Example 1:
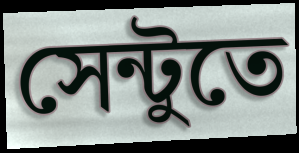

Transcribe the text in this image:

সেন্টুতে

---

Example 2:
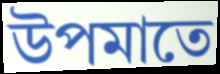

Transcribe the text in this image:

উপমাতে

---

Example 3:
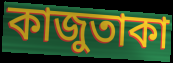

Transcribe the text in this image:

কাজুতাকা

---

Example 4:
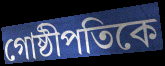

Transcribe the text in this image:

গোষ্ঠীপতিকে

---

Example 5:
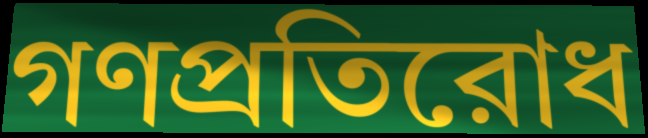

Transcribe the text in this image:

গণপ্রতিরোধ